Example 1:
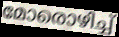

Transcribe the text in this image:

മോരൊഴിച്ച്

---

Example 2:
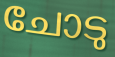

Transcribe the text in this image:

ചോടു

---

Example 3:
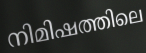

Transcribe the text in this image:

നിമിഷത്തിലെ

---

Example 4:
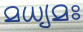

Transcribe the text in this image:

മധ്യമഃ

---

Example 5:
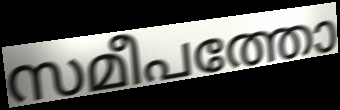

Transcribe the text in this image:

സമീപത്തോ